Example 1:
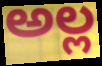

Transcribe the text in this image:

అల్ల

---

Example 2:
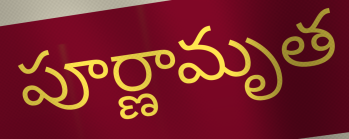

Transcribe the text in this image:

పూర్ణామృత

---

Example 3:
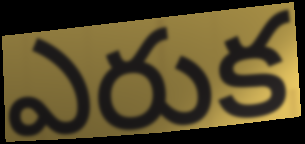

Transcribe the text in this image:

ఎరుక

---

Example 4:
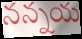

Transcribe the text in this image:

నన్నయ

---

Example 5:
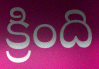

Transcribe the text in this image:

క్రింది